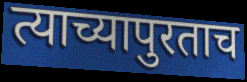
त्याच्यापुरताच